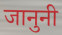
जानुनी